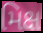
મિક્ષ